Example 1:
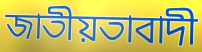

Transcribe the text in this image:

জাতীয়তাবাদী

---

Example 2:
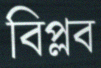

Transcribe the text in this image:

বিপ্লব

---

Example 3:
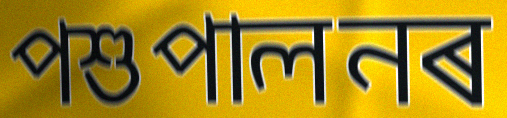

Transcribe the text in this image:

পশুপালনৰ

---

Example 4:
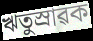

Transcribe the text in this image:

ঋতুস্ৰাৱক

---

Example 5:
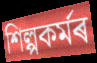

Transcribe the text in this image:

শিল্পকৰ্মৰ